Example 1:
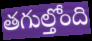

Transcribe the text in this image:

తగుల్తోంది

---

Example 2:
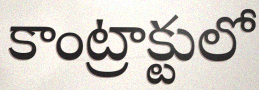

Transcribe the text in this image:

కాంట్రాక్టులో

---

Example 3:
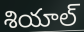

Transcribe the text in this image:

శియాల్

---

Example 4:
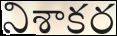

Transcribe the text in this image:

నిశాకర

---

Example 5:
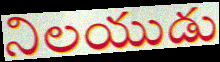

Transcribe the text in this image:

నిలయుడు